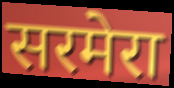
सरमेरा